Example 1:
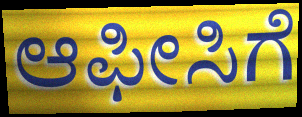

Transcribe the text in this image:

ಆಫೀಸಿಗೆ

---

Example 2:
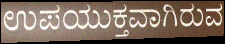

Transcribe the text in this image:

ಉಪಯುಕ್ತವಾಗಿರುವ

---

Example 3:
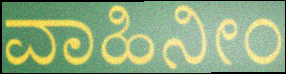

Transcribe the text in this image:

ವಾಹಿನೀಂ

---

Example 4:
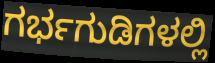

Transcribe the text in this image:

ಗರ್ಭಗುಡಿಗಳಲ್ಲಿ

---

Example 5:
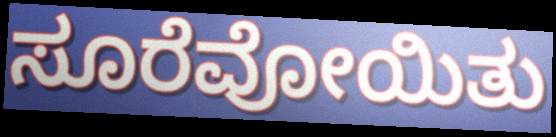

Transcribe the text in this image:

ಸೂರೆವೋಯಿತು